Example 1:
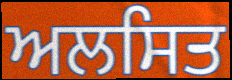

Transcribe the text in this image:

ਅਲਸਿਤ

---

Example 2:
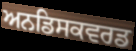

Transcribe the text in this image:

ਅਨਡਿਸਕਵਰਡ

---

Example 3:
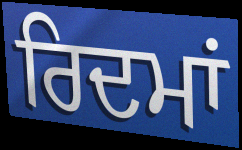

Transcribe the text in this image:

ਰਿਦਮਾਂ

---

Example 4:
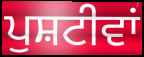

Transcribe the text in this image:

ਪੁਸ਼ਟੀਵਾਂ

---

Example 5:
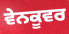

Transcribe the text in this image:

ਵੇਨਕੂਵਰ